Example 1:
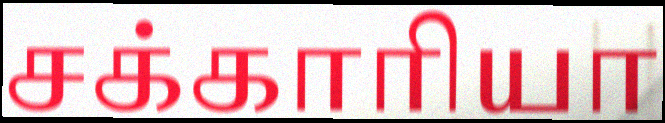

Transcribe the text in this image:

சக்காரியா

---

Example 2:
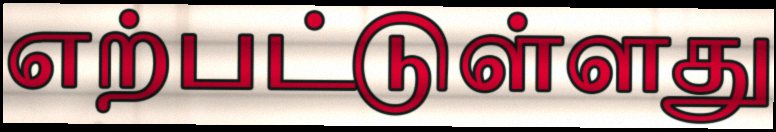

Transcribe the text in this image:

எற்பட்டுள்ளது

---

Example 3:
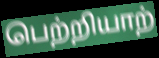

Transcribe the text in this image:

பெற்றியாற்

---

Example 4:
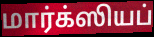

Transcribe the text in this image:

மார்க்ஸியப்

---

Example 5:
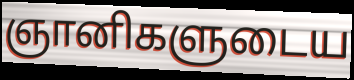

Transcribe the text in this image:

ஞானிகளுடைய